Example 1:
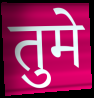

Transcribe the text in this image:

तुमे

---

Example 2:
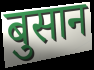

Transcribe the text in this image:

बुसान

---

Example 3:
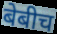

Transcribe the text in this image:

बेबीच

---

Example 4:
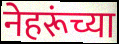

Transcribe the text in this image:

नेहरूंच्या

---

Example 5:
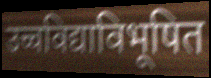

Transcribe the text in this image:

उच्चविद्याविभूषित